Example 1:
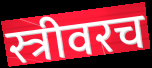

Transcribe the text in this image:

स्त्रीवरच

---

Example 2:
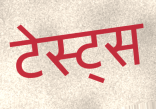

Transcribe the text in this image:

टेस्ट्स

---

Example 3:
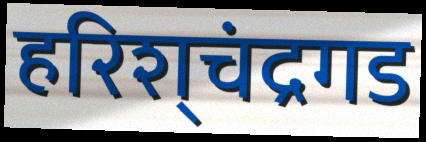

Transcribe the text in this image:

हरिश्चंद्रगड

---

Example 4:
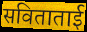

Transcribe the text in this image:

सविताताई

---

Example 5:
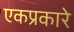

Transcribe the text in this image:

एकप्रकारे